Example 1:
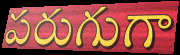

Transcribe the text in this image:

పరుగుగా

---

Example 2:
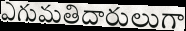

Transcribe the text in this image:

ఎగుమతిదారులుగా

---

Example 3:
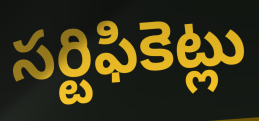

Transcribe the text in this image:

సర్టిఫికెట్లు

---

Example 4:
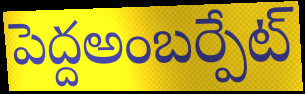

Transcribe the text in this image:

పెద్దఅంబర్పేట్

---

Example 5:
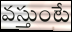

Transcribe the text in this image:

వస్తుంటే